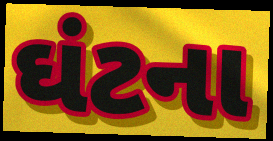
ઘંટના